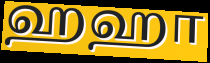
ஹஹா